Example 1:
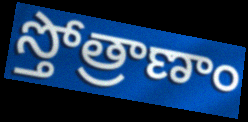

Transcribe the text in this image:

స్తోత్రాణాం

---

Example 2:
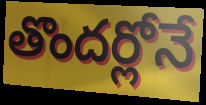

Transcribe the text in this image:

తొందర్లోనే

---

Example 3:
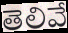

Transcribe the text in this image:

తెలివే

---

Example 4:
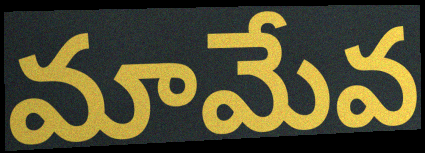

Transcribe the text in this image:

మామేవ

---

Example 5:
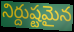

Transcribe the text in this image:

నిర్దుష్టమైన